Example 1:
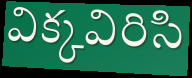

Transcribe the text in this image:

విక్కవిరిసి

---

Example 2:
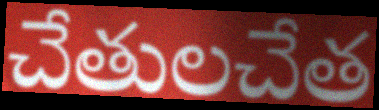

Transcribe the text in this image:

చేతులచేత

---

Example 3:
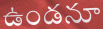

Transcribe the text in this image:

ఉండనూ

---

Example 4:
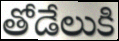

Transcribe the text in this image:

తోడేలుకి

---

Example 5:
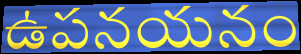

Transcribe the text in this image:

ఉపనయనం